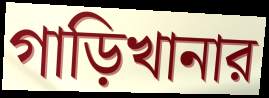
গাড়িখানার